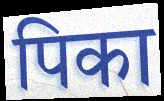
पिका